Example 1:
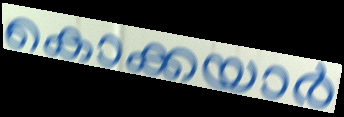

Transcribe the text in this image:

കൊക്കയാർ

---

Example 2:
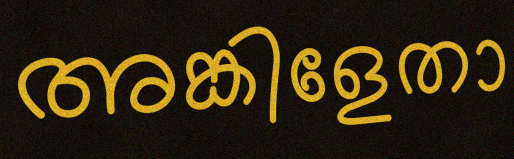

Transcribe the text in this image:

അങ്കിളേതാ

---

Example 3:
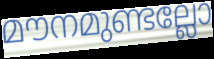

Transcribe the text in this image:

മൗനമുണ്ടല്ലോ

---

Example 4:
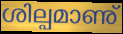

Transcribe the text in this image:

ശില്പമാണു്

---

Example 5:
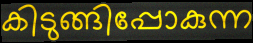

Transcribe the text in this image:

കിടുങ്ങിപ്പോകുന്ന